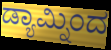
ಡ್ಯಾಮ್ನಿಂದ